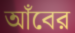
আঁবের